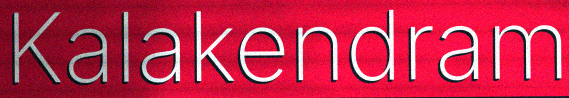
Kalakendram